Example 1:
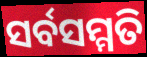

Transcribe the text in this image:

ସର୍ବସମ୍ମତି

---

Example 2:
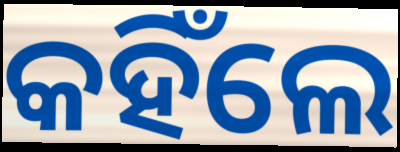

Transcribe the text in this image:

କହିଁଲେ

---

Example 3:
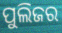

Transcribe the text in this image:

ପୁଲିଜର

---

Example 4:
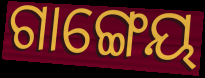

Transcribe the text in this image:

ଗାଙ୍ଗେୟ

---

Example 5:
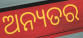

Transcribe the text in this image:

ଅନ୍ୟତର